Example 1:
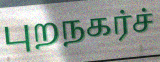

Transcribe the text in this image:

புறநகர்ச்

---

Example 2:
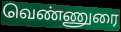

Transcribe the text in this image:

வெண்ணுரை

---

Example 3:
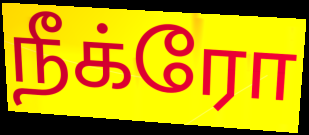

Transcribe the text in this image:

நீக்ரோ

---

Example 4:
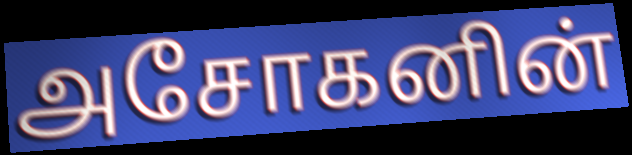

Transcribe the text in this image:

அசோகனின்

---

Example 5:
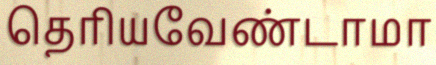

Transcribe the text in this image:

தெரியவேண்டாமா